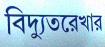
বিদ্যুতরেখার